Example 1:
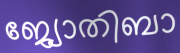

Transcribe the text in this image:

ജ്യോതിബാ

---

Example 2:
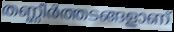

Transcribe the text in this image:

തണ്ണീർത്തടങ്ങളാണ്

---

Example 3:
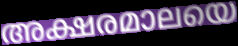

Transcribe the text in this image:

അക്ഷരമാലയെ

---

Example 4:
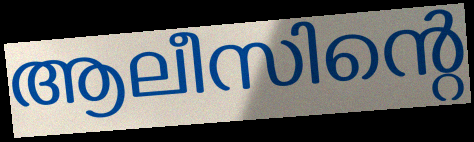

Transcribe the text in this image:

ആലീസിന്റെ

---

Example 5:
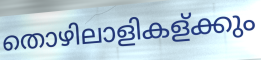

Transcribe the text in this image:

തൊഴിലാളികള്ക്കും